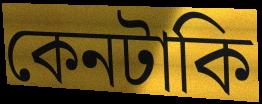
কেনটাকি